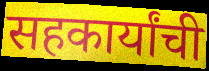
सहकार्यांची